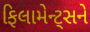
ફિલામેન્ટ્સને